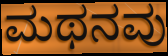
ಮಥನವು